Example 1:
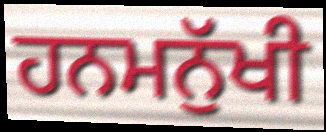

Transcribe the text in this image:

ਹਨਮਨੁੱਖੀ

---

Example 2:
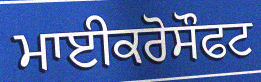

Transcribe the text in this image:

ਮਾਈਕਰੋਸੌਫਟ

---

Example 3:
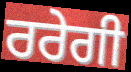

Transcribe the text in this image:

ਰਰੇਗੀ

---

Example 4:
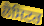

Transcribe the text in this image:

ਲੈਸਿਟਰ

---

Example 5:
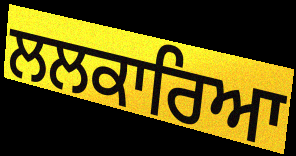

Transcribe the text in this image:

ਲਲਕਾਰਿਆ